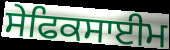
ਸੇਫਿਕਸਾਈਮ